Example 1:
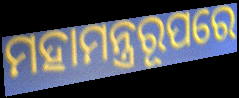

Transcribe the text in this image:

ମହାମନ୍ତ୍ରରୂପରେ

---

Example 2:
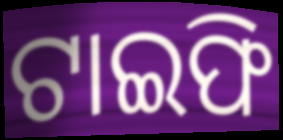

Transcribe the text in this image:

ଟାଇଫି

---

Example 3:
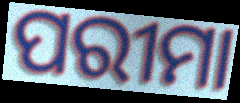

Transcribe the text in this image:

ପରୀମା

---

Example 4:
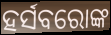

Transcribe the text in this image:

ହର୍ସବରୋଙ୍କ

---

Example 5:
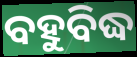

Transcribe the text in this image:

ବହୁବିଦ୍ଧ